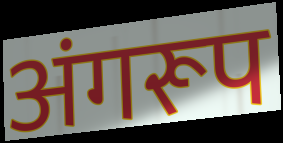
अंगरूप